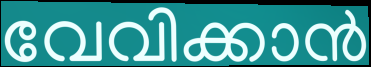
വേവിക്കാൻ